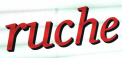
ruche